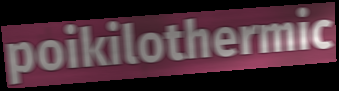
poikilothermic